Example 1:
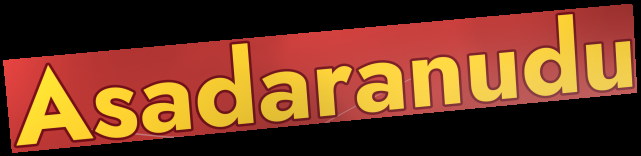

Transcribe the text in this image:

Asadaranudu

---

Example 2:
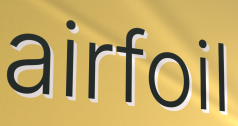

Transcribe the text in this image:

airfoil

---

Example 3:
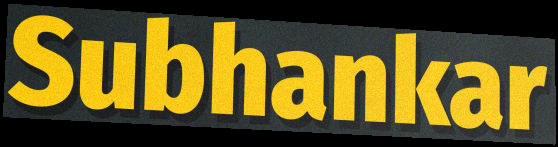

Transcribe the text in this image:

Subhankar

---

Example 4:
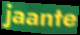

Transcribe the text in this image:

jaante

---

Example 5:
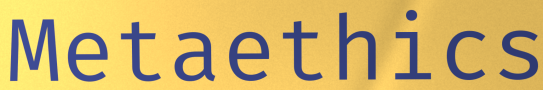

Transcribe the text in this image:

Metaethics